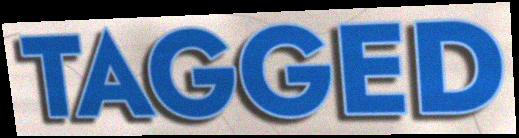
TAGGED